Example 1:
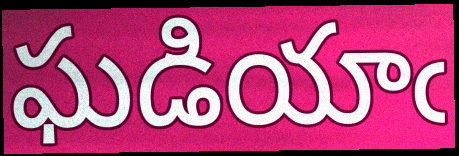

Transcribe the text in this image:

ఘడియాఁ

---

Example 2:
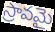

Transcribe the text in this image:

స్రావమై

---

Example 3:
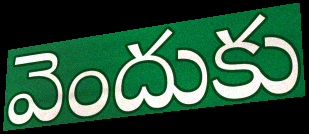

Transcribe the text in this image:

వెందుకు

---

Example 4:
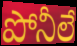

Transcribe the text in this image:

పోనీలే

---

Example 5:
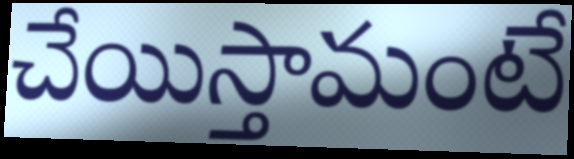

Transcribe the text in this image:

చేయిస్తామంటే